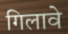
गिलावे